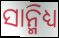
ସାନ୍ମିଧ୍ୟ